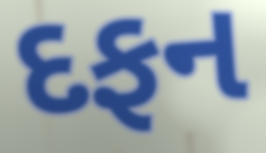
દફન